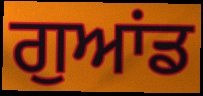
ਗੁਆਂਡ